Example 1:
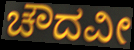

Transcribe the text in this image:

ಚೌದವೀ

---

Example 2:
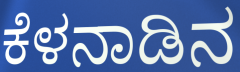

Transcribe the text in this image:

ಕೆಳನಾಡಿನ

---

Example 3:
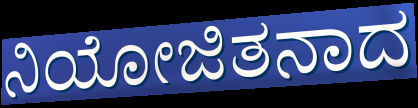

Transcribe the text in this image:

ನಿಯೋಜಿತನಾದ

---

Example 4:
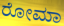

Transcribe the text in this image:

ರೋಮಾ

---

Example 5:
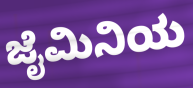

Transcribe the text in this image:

ಜೈಮಿನಿಯ